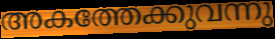
അകത്തേക്കുവന്നു